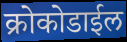
क्रोकोडाईल